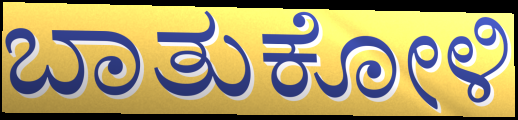
ಬಾತುಕೋಳಿ